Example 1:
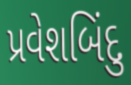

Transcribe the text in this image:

પ્રવેશબિંદુ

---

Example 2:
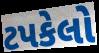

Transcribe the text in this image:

ટપકેલો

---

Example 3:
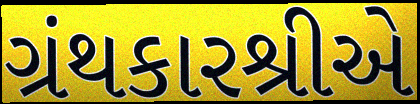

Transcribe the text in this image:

ગ્રંથકારશ્રીએ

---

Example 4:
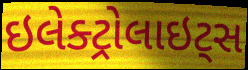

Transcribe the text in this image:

ઇલેક્ટ્રોલાઇટ્સ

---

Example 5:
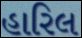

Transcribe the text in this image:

હારિલ